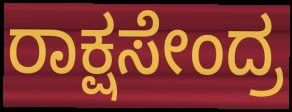
ರಾಕ್ಷಸೇಂದ್ರ